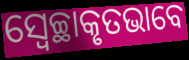
ସ୍ୱେଚ୍ଛାକୃତଭାବେ